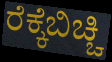
ರೆಕ್ಕೆಬಿಚ್ಚಿ